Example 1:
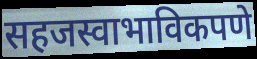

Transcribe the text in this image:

सहजस्वाभाविकपणे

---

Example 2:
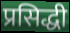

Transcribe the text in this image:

प्रसिद्धी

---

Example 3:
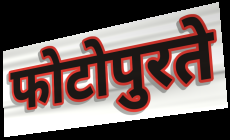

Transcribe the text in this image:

फोटोपुरते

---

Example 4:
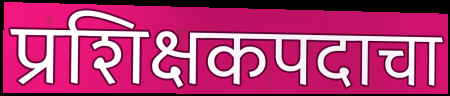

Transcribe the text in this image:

प्रशिक्षकपदाचा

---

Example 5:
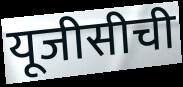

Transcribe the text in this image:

यूजीसीची